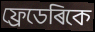
ফ্ৰেডেৰিকে